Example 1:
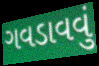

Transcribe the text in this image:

ગવડાવવું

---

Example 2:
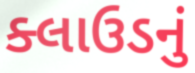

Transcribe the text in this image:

ક્લાઉડનું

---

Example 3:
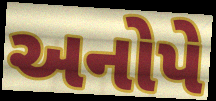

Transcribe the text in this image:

અનોપે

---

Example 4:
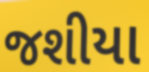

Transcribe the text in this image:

જશીયા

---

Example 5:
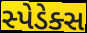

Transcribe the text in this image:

સ્પેડેક્સ